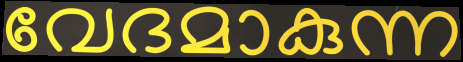
വേദമാകുന്ന